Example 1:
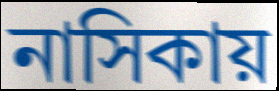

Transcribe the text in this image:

নাসিকায়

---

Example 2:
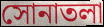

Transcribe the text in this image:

সোনাতলা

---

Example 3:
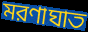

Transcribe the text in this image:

মরণাঘাত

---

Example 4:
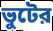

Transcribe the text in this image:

ভুটের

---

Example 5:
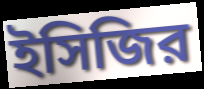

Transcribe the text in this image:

ইসিজির